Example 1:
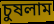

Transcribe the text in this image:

চুষলাম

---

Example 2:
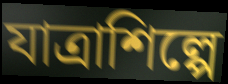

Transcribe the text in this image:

যাত্রাশিল্পে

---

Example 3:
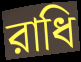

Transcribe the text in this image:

রাধি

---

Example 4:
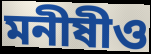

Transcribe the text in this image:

মনীষীও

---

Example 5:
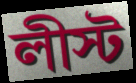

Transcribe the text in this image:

লীস্ট